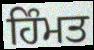
ਹਿੰਮਤ